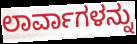
ಲಾರ್ವಾಗಳನ್ನು